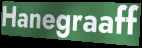
Hanegraaff